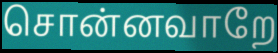
சொன்னவாறே